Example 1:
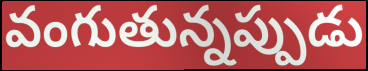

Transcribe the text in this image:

వంగుతున్నప్పుడు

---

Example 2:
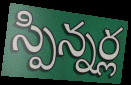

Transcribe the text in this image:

స్పిన్నర్ల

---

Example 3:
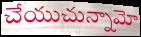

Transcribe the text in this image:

చేయుచున్నామో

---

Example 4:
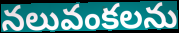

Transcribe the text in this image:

నలువంకలను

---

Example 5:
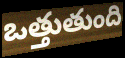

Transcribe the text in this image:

ఒత్తుతుంది